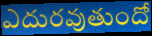
ఎదురవుతుందో